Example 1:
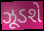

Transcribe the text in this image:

ઝૂડશે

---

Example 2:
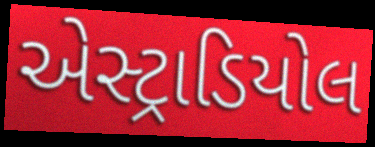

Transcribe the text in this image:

એસ્ટ્રાડિયોલ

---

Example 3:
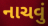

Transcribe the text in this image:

નાચવું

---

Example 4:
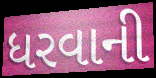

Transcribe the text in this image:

ધરવાની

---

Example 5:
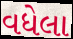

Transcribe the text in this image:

વધેલા